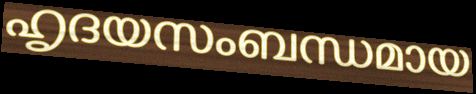
ഹൃദയസംബന്ധമായ